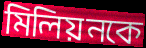
মিলিয়নকে